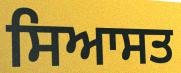
ਸਿਆਸਤ